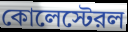
কোলেস্টেরল